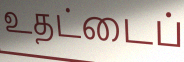
உதட்டைப்